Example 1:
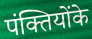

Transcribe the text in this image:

पंक्तियोंके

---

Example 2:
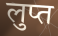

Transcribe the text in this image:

लुप्त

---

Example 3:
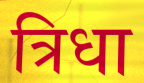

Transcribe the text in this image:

त्रिधा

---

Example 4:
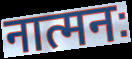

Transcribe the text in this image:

नात्मनः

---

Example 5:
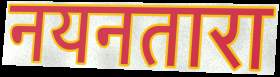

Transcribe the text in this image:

नयनतारा